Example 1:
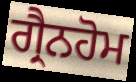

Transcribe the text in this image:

ਗ੍ਰੈਨਹੋਮ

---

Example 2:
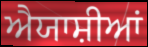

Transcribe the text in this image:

ਐਯਾਸ਼ੀਆਂ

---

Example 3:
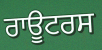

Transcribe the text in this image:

ਰਾਊਟਰਸ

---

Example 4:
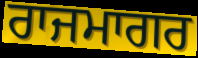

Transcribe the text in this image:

ਰਾਜਮਾਗਰ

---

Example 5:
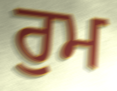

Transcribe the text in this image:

ਰੁਮ